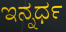
ಇನ್ನರ್ಧ